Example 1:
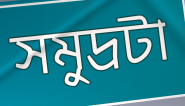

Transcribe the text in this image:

সমুদ্রটা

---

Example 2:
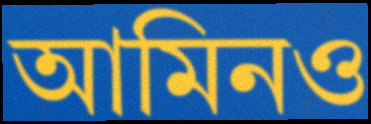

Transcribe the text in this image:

আমিনও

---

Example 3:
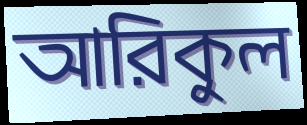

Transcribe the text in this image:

আরিকুল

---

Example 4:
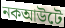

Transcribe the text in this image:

নকআউটে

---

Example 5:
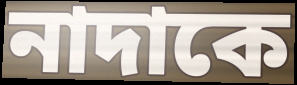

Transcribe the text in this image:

নাদাকে